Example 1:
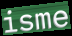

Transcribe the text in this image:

isme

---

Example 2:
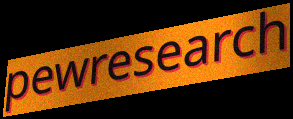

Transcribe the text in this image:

pewresearch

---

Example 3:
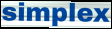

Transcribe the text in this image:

simplex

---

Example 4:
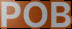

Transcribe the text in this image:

POB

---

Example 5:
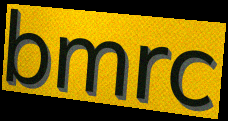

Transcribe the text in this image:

bmrc